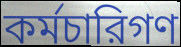
কর্মচারিগণ